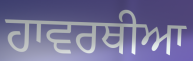
ਹਾਵਰਥੀਆ